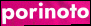
porinoto